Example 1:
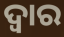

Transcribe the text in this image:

ଦ୍ୱାର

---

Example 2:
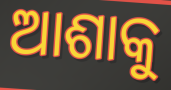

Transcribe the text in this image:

ଆଶାକୁ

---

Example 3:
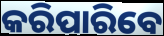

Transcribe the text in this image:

କରିପାରିବେ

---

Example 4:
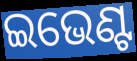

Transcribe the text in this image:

ଇଭେଣ୍ଟ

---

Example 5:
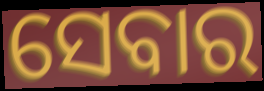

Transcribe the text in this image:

ସେବାର